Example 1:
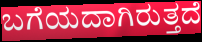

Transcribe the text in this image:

ಬಗೆಯದಾಗಿರುತ್ತದೆ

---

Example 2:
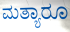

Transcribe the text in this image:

ಮತ್ಯಾರೂ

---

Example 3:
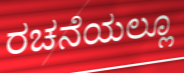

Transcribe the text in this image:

ರಚನೆಯಲ್ಲೂ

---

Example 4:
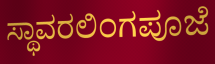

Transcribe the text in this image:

ಸ್ಥಾವರಲಿಂಗಪೂಜೆ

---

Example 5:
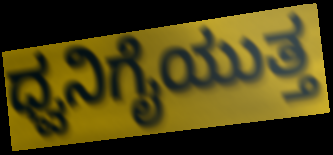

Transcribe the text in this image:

ಧ್ವನಿಗೈಯುತ್ತ